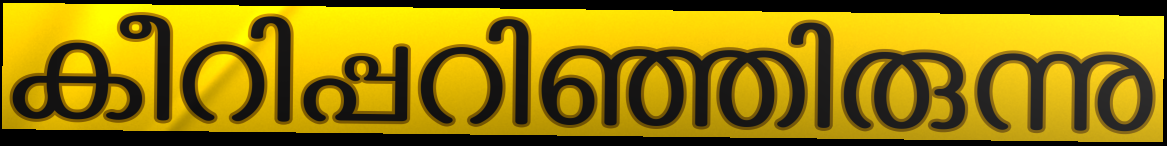
കീറിപ്പറിഞ്ഞിരുന്നു